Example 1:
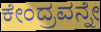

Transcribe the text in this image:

ಕೇಂದ್ರವನ್ನೇ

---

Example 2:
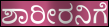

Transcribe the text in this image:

ಶಾರೀರನಿಗೆ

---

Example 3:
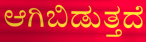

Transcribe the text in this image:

ಆಗಿಬಿಡುತ್ತದೆ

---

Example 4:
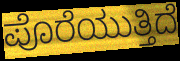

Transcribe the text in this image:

ಪೊರೆಯುತ್ತಿದೆ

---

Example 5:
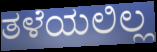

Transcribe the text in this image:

ತಳೆಯಲಿಲ್ಲ